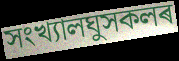
সংখ্যালঘুসকলৰ